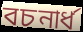
বচনার্ধ